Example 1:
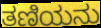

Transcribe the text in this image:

ತಣಿಯನು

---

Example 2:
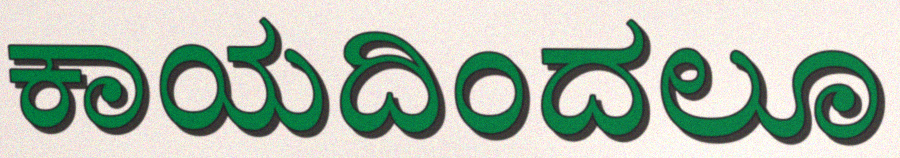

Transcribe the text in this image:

ಕಾಯದಿಂದಲೂ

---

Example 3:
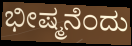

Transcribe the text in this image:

ಭೀಷ್ಮನೆಂದು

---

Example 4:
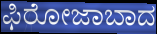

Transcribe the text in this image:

ಫಿರೋಜಾಬಾದ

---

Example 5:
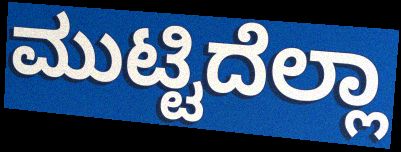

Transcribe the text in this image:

ಮುಟ್ಟಿದೆಲ್ಲಾ